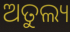
ଅତୁଲ୍ୟ